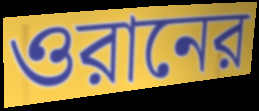
ওরানের